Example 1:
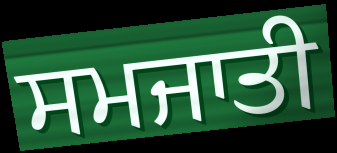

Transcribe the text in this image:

ਸਮਜਾਤੀ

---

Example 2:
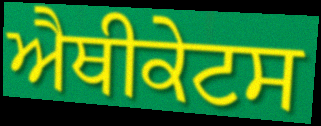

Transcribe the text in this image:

ਐਥੀਕੇਟਸ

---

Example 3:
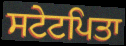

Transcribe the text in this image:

ਸਟੇਟਪਿਤਾ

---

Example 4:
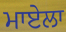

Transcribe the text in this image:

ਮਾਏਲਾ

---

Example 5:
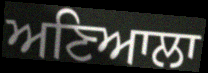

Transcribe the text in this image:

ਅਣਿਆਲਾ